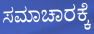
ಸಮಾಚಾರಕ್ಕೆ